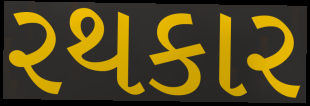
રથકાર